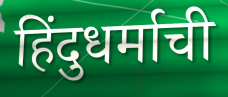
हिंदुधर्माची